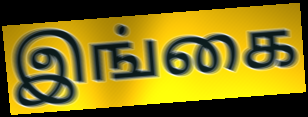
இங்கை